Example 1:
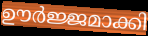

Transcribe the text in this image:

ഊർജ്ജമാക്കി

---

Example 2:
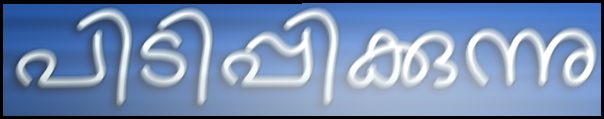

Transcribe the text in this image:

പിടിപ്പിക്കുന്നു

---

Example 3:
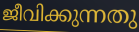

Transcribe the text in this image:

ജീവിക്കുന്നതു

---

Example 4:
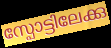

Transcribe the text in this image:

സ്പോട്ടിലേക്കു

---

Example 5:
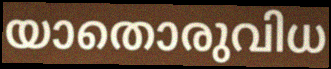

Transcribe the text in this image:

യാതൊരുവിധ